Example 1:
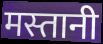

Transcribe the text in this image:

मस्‍तानी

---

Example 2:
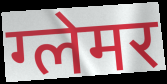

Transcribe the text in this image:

ग्लेमर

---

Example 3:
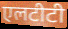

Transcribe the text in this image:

एलटीटी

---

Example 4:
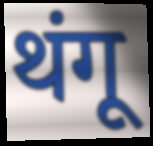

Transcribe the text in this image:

थंगू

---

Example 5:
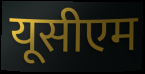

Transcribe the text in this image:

यूसीएम